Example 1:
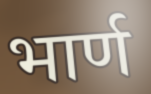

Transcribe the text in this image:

भार्ण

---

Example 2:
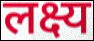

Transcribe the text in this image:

लक्ष्य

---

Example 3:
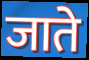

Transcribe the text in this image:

जाते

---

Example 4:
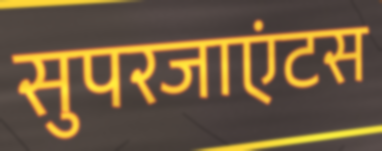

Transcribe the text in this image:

सुपरजाएंटस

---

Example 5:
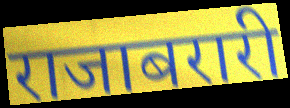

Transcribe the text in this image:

राजाबरारी